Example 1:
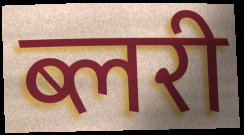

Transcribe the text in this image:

ब्लरी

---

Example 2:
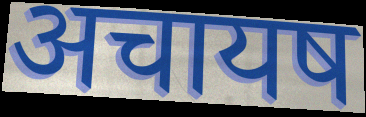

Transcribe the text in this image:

अचायष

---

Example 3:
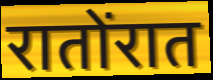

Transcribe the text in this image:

रातोंरात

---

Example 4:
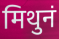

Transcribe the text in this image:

मिथुनं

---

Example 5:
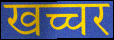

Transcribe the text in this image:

खच्‍चर